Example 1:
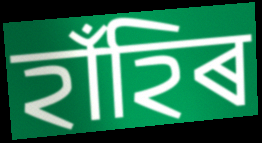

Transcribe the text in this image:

হাঁহিৰ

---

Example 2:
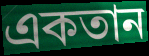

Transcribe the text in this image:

একতান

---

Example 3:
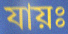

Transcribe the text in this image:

যায়ঃ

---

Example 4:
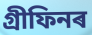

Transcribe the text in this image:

গ্ৰীফিনৰ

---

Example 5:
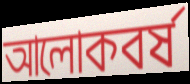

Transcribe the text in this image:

আলোকবৰ্ষ